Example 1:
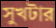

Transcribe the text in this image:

সুখটার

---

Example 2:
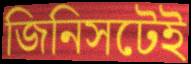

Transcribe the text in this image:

জিনিসটেই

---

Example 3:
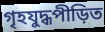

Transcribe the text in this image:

গৃহযুদ্ধপীড়িত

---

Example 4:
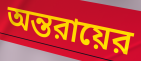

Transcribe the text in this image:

অন্তরায়ের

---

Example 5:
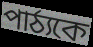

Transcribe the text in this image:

পাঠ্যকে